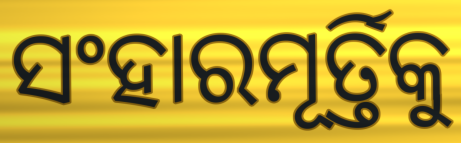
ସଂହାରମୂର୍ତ୍ତିକୁ